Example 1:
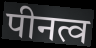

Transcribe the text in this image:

पीनत्व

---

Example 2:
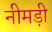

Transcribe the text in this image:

नीमड़ी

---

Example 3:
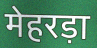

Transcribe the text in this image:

मेहरड़ा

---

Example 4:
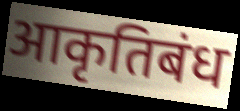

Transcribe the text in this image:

आकृतिबंध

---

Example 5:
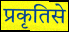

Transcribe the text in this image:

प्रकृतिसे